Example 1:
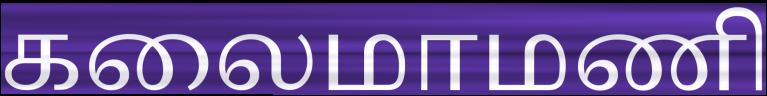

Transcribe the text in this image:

கலைமாமணி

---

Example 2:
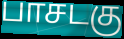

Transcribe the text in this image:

பாசடகு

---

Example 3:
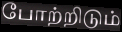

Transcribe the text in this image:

போற்றிடும்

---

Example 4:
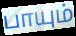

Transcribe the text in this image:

பாயும்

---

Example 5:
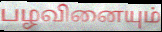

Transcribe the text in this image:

பழவினையும்